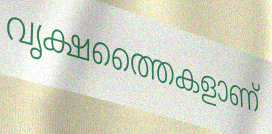
വൃക്ഷത്തൈകളാണ്